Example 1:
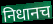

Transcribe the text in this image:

निधानच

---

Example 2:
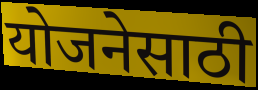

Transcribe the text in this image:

योजनेसाठी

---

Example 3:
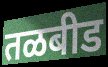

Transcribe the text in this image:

तळबीड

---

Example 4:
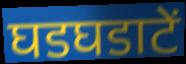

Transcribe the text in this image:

घडघडाटें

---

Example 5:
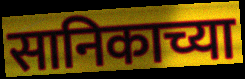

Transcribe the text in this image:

सानिकाच्या